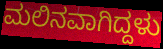
ಮಲಿನವಾಗಿದ್ದಳು